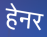
हेनर